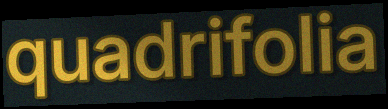
quadrifolia